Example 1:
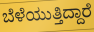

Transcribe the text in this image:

ಬೆಳೆಯುತ್ತಿದ್ದಾರೆ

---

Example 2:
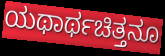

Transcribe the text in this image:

ಯಥಾರ್ಥಚಿತ್ತನೂ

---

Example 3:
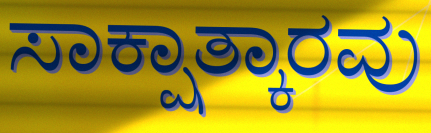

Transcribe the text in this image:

ಸಾಕ್ಷಾತ್ಕಾರವು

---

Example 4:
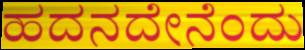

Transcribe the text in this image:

ಹದನದೇನೆಂದು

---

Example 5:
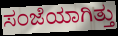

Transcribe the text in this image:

ಸಂಜೆಯಾಗಿತ್ತು